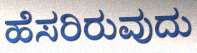
ಹೆಸರಿರುವುದು